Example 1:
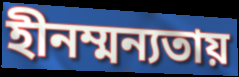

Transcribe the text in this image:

হীনম্মন্যতায়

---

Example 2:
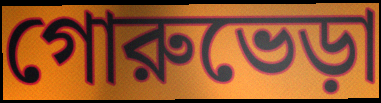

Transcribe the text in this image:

গোরুভেড়া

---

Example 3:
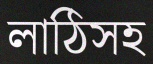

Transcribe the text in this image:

লাঠিসহ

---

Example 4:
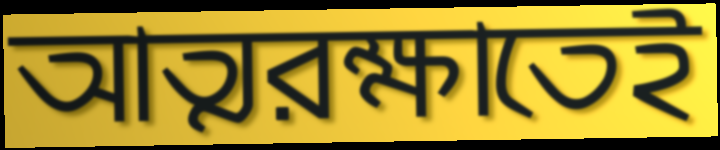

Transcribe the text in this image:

আত্মরক্ষাতেই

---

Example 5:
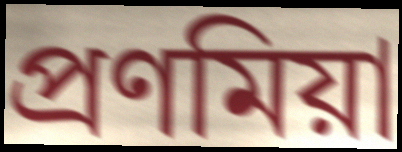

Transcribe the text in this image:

প্রণমিয়া